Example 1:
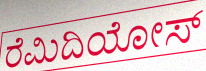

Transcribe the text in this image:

ರೆಮಿದಿಯೋಸ್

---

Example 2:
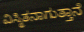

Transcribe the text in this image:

ವಿಸ್ಮಿತನಾಗುತ್ತಾನೆ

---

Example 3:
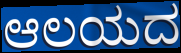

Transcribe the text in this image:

ಆಲಯದ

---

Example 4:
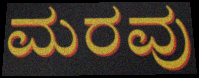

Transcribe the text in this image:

ಮರವು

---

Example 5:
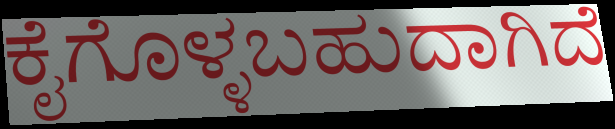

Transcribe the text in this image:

ಕೈಗೊಳ್ಳಬಹುದಾಗಿದೆ